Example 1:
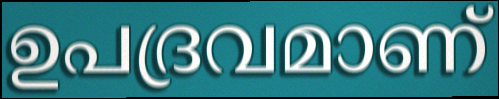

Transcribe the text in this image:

ഉപദ്രവമാണ്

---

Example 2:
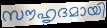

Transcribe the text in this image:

സൗഹൃദമായി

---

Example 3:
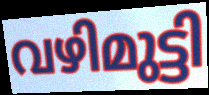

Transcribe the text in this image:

വഴിമുട്ടി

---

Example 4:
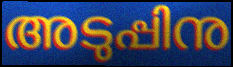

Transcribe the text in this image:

അടുപ്പിനു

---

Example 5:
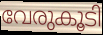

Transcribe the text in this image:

വേരുകൂടി